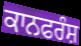
ਕਾਨਫਰੰਸ਼